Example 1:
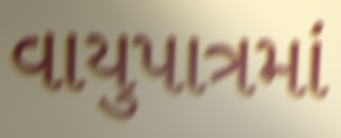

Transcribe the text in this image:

વાયુપાત્રમાં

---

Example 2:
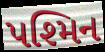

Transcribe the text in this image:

પશ્મિન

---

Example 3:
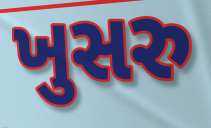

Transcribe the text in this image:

ખુસરુ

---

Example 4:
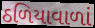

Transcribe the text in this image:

ઠળિયાવાળાં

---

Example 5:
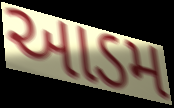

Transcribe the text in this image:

આડમ